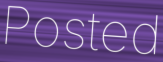
Posted